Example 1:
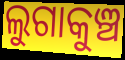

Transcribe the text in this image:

ଲୁଗାକୁଞ୍ଚ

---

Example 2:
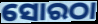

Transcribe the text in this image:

ସୋରଠା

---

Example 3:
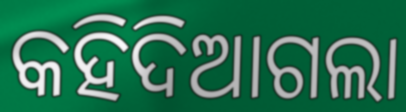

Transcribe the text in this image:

କହିଦିଆଗଲା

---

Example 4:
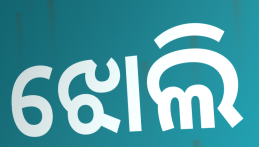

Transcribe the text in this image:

ଝୋଲି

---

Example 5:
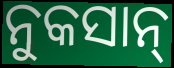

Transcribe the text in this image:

ନୁକସାନ୍